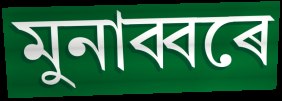
মুনাব্বৰে